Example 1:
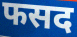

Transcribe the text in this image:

फसद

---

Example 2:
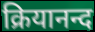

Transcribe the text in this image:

क्रियानन्द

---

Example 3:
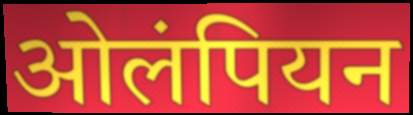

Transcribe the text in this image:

ओलंपियन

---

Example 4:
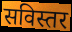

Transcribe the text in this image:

सविस्तर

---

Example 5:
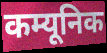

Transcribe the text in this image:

कम्यूनिक